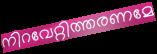
നിറവേറ്റിത്തരണമേ